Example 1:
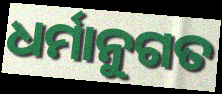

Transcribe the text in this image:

ଧର୍ମାନୁଗତ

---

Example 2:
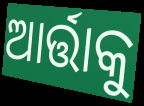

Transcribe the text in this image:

ଆର୍ତ୍ତାକୁ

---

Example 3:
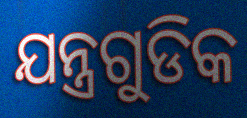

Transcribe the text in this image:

ଯନ୍ତ୍ରଗୁଡିକ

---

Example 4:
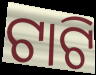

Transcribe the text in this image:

ଟାଟି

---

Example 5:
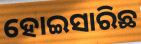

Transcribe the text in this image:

ହୋଇସାରିଛ